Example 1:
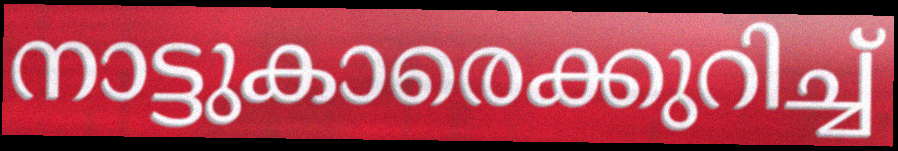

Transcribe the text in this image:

നാട്ടുകാരെക്കുറിച്ച്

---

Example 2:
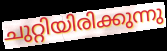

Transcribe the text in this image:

ചുറ്റിയിരിക്കുന്നു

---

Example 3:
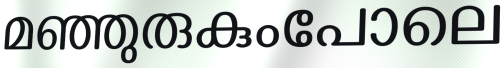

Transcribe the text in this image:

മഞ്ഞുരുകുംപോലെ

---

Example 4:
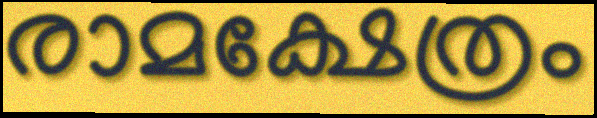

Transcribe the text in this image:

രാമക്ഷേത്രം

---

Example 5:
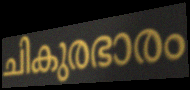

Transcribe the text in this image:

ചികുരഭാരം